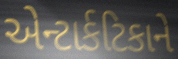
એન્ટાર્કટિકાને